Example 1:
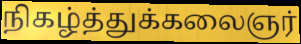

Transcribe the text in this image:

நிகழ்த்துக்கலைஞர்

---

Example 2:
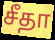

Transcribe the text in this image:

சீதா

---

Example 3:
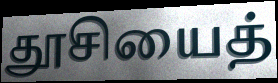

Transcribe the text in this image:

தூசியைத்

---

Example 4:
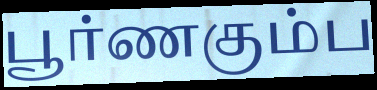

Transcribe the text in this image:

பூர்ணகும்ப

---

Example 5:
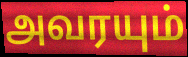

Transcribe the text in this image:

அவரயும்